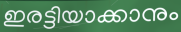
ഇരട്ടിയാക്കാനും